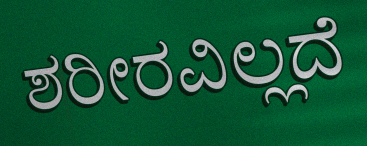
ಶರೀರವಿಲ್ಲದೆ